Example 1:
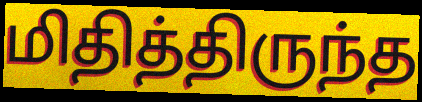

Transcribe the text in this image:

மிதித்திருந்த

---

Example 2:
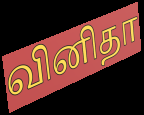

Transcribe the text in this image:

வினிதா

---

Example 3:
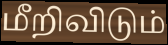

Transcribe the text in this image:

மீறிவிடும்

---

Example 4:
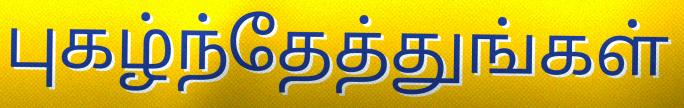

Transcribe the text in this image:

புகழ்ந்தேத்துங்கள்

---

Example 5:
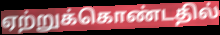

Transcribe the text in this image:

ஏற்றுக்கொண்டதில்